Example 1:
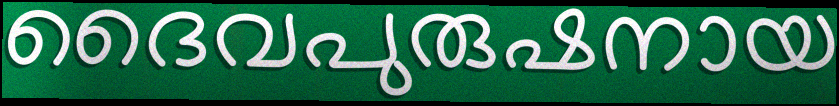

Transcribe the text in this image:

ദൈവപുരുഷനായ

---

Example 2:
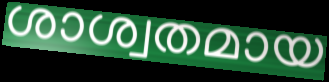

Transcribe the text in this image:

ശാശ്വതമായ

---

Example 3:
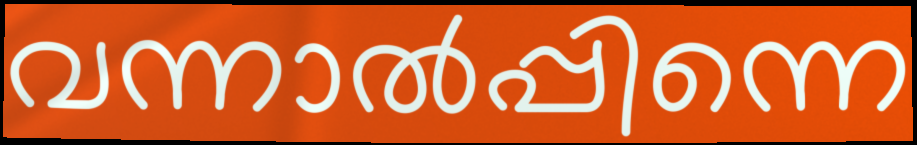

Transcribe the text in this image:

വന്നാൽപ്പിന്നെ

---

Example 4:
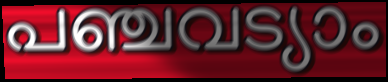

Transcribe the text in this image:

പഞ്ചവട്യാം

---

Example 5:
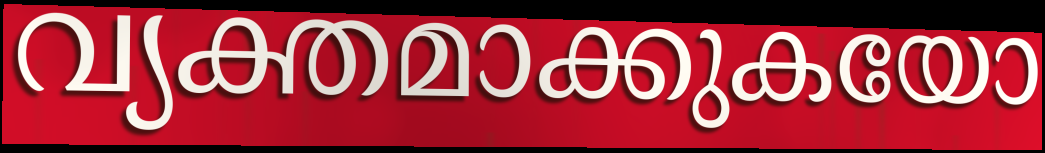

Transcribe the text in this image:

വ്യക്തമാക്കുകയോ